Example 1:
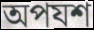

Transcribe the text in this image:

অপযশ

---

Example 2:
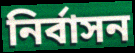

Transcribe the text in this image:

নিৰ্বাসন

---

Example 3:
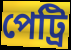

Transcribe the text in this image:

পেট্ৰি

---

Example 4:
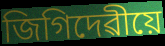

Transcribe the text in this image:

জিগিদেৱীয়ে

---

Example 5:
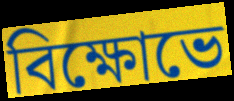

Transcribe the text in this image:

বিক্ষোভে